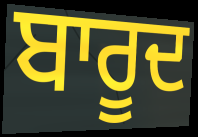
ਬਾਰੂਦ